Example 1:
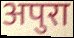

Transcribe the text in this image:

अपुरा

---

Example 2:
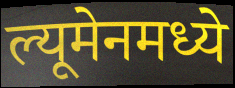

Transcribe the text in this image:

ल्यूमेनमध्ये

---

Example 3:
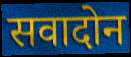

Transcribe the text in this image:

सवादोन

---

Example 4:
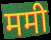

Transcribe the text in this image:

ममी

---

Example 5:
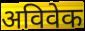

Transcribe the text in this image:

अविवेक